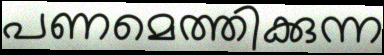
പണമെത്തിക്കുന്ന